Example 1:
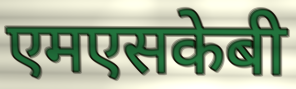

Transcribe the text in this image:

एमएसकेबी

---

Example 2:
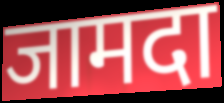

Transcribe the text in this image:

जामदा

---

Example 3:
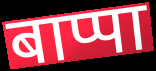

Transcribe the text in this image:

बाप्पा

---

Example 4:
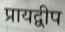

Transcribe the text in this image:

प्रायद्वीप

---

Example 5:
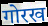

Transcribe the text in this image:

गोरख